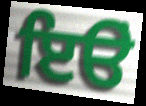
ਇੳਂ